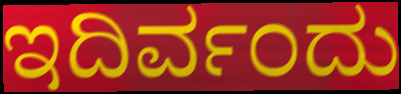
ಇದಿರ್ವಂದು